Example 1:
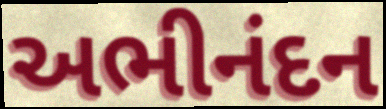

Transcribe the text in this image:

અભીનંદન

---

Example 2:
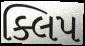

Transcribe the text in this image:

ક્લિપ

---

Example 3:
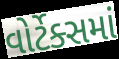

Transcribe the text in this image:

વોર્ટેક્સમાં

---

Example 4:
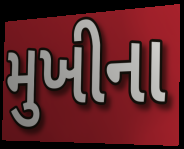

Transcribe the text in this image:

મુખીના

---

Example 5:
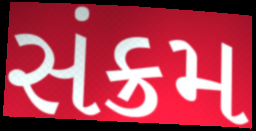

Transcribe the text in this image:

સંક્રમ